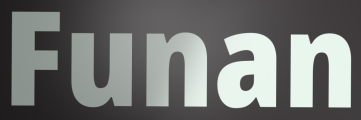
Funan